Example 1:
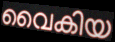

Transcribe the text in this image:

വൈകിയ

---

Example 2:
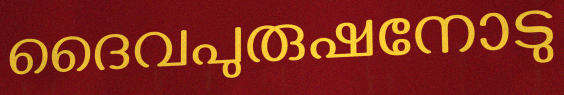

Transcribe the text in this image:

ദൈവപുരുഷനോടു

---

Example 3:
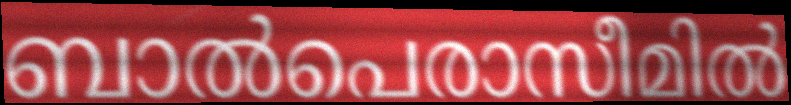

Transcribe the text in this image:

ബാൽപെരാസീമിൽ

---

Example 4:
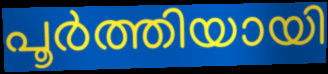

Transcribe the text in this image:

പൂർത്തിയായി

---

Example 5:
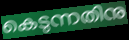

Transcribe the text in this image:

കെടുന്നതിനു